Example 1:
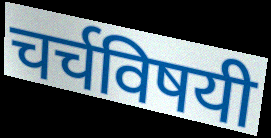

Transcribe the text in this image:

चर्चविषयी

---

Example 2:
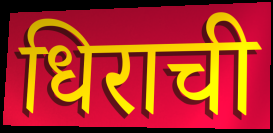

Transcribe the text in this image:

धिराची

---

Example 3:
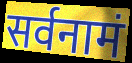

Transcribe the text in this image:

सर्वनामं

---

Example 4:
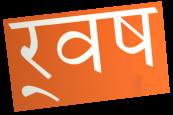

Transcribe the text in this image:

र्वष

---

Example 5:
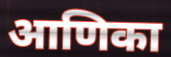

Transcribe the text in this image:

आणिका